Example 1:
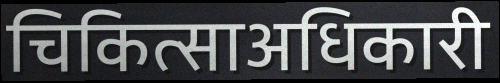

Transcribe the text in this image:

चिकित्साअधिकारी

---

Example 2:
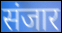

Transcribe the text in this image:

संजार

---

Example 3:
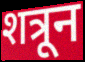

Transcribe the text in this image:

शत्रून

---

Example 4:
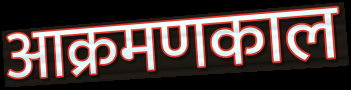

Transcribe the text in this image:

आक्रमणकाल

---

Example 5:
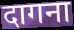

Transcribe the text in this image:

दागना